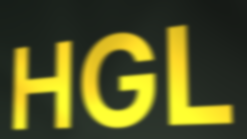
HGL